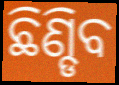
ଛିଣ୍ଡିବ